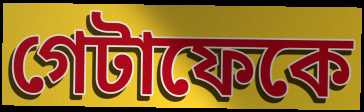
গেটাফেকে